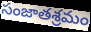
సంజాతశ్రమం